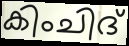
കിംചിദ്